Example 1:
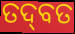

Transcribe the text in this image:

ତଦ୍‍ବତ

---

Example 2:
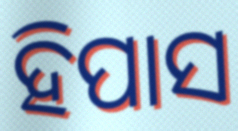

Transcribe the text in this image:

ହିପାସ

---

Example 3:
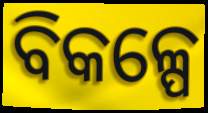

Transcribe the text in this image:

ବିକଳ୍ପେ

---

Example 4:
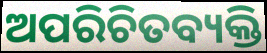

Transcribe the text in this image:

ଅପରିଚିତବ୍ୟକ୍ତି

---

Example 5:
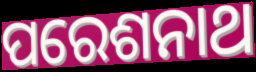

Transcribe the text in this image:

ପରେଶନାଥ